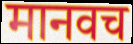
मानवच